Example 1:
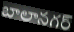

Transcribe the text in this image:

బాలానగర్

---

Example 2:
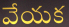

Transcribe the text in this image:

వేయక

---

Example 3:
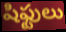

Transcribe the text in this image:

షిఫ్టులు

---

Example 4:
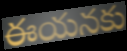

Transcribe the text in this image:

ఈయనకు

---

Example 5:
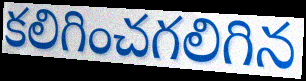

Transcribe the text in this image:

కలిగించగలిగిన